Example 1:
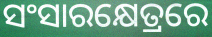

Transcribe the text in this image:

ସଂସାରକ୍ଷେତ୍ରରେ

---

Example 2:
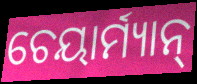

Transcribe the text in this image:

ଚେୟାର୍ମ୍ୟାନ୍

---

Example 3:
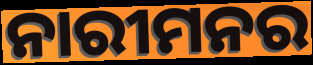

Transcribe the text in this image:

ନାରୀମନର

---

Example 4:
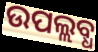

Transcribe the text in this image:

ଉପଲ୍ଲବ୍ଧ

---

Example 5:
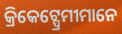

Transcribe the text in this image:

କ୍ରିକେଟ୍ପ୍ରେମୀମାନେ